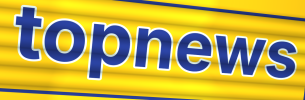
topnews